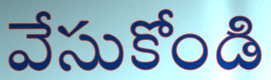
వేసుకోండి